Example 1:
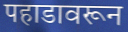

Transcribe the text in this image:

पहाडावरून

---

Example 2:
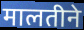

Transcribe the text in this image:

मालतीने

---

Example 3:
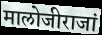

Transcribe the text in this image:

मालोजीराजां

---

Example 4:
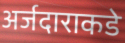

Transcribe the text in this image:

अर्जदाराकडे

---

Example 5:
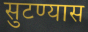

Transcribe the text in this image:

सुटण्यास